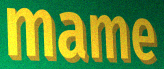
mame